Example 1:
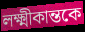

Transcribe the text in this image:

লক্ষ্মীকান্তকে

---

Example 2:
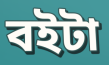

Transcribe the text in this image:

বইটা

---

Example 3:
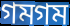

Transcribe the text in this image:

গমগম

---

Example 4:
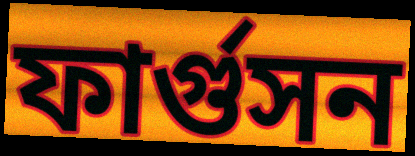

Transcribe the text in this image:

ফার্গুসন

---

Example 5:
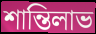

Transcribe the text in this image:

শান্তিলাভ